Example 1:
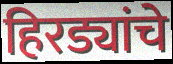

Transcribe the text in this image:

हिरड्यांचे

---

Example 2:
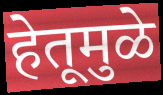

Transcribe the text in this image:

हेतूमुळे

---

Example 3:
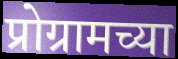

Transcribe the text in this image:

प्रोग्रामच्या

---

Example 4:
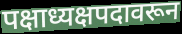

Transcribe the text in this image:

पक्षाध्यक्षपदावरून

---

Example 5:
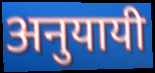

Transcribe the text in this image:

अनुयायी